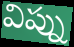
విప్ను